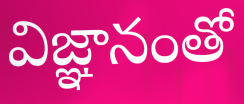
విజ్ఞానంతో